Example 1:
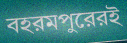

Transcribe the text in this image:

বহরমপুরেরই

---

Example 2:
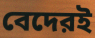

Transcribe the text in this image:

বেদেরই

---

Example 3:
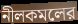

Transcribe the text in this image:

নীলকমলের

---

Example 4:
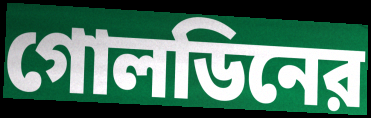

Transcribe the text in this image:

গোলডিনের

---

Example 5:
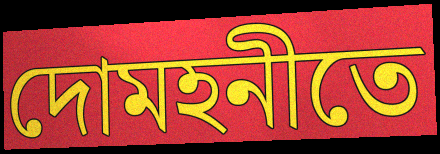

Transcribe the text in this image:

দোমহনীতে